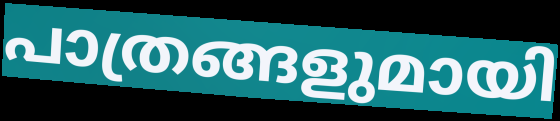
പാത്രങ്ങളുമായി